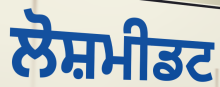
ਲੋਸ਼ਮੀਡਟ